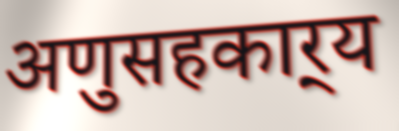
अणुसहकार्य